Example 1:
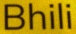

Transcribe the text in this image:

Bhili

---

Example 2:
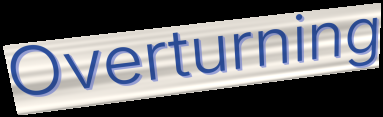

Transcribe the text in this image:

Overturning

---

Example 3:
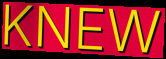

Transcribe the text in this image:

KNEW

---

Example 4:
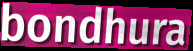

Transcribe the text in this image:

bondhura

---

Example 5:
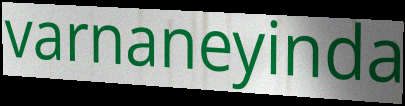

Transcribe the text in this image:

varnaneyinda